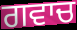
ਗਵਾਚ